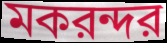
মকরন্দর